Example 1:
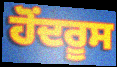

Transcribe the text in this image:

ਹੋਂਦਰੂਸ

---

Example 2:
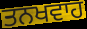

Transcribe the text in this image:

ਤਨਖਵਾਹ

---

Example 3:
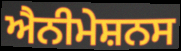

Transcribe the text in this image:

ਐਨੀਮੇਸ਼ਨਸ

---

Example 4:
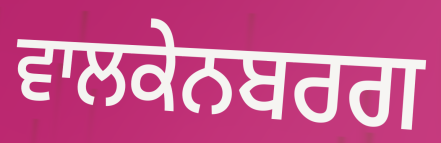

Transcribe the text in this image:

ਵਾਲਕੇਨਬਰਗ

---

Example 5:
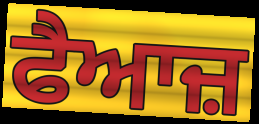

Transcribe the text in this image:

ਫੈਆਜ਼